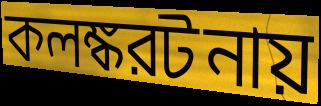
কলঙ্করটনায়